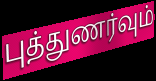
புத்துணர்வும்